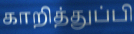
காறித்துப்பி